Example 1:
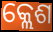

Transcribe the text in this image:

କ୍ଲେଶ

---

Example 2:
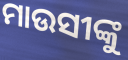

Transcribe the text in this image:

ମାଉସୀଙ୍କୁ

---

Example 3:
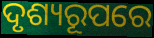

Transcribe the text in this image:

ଦୃଶ୍ୟରୂପରେ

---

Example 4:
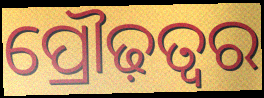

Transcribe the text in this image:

ପ୍ରୌଢ଼ତ୍ୱର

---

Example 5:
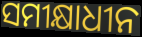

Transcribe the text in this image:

ସମୀକ୍ଷାଧୀନ